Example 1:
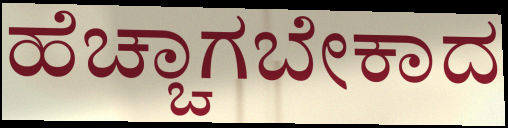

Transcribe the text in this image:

ಹೆಚ್ಚಾಗಬೇಕಾದ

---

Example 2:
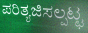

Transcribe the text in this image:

ಪರಿತ್ಯಜಿಸಲ್ಪಟ್ಟ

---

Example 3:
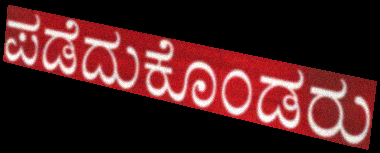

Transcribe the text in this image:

ಪಡೆದುಕೊಂಡರು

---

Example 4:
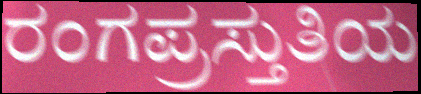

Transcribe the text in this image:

ರಂಗಪ್ರಸ್ತುತಿಯ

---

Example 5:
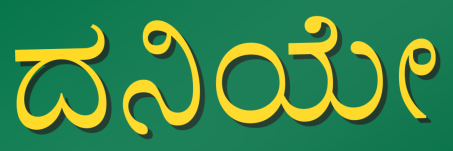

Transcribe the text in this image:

ದನಿಯೇ